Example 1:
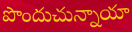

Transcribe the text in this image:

పొందుచున్నాయా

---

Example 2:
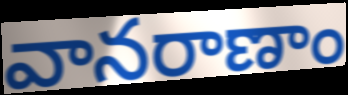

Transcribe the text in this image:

వానరాణాం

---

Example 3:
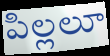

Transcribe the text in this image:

పిల్లలూ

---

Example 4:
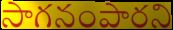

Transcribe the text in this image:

సాగనంపారని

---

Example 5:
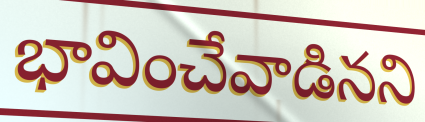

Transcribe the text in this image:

భావించేవాడినని